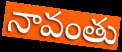
నావంతు